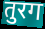
तुरग